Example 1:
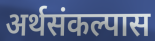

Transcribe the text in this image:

अर्थसंकल्पास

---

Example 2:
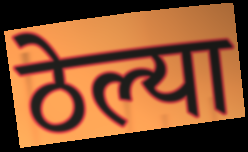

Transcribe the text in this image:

ठेल्या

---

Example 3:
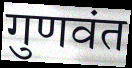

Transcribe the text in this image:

गुणवंत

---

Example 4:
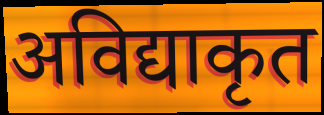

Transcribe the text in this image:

अविद्याकृत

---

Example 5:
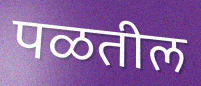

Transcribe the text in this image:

पळतील